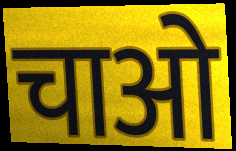
चाओ